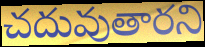
చదువుతారని